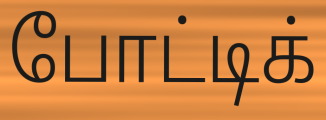
போட்டிக்